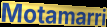
Motamarri